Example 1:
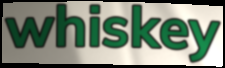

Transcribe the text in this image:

whiskey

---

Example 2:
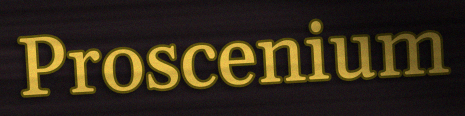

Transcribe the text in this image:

Proscenium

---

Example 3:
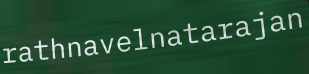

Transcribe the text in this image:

rathnavelnatarajan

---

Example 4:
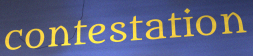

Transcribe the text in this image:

contestation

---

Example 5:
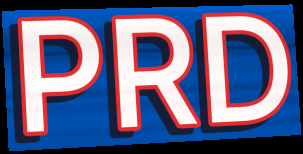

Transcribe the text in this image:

PRD